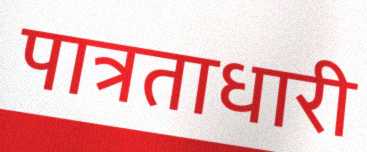
पात्रताधारी